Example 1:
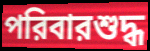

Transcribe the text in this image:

পরিবারশুদ্ধ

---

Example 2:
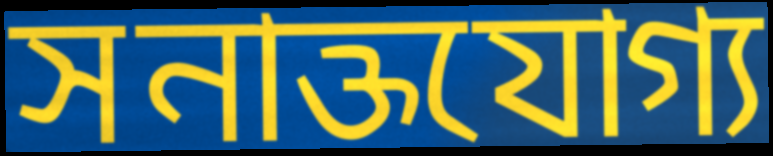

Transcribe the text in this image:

সনাক্তযোগ্য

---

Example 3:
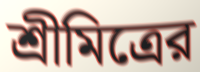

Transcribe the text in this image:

শ্রীমিত্রের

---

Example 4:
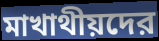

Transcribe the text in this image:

মাখাথীয়দের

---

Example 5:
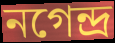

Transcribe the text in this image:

নগেন্দ্র